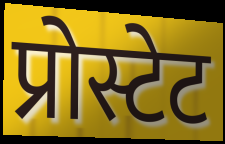
प्रोस्टेट